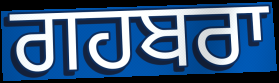
ਗਹਬਰਾ